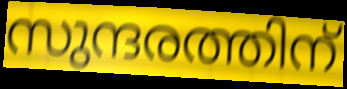
സുന്ദരത്തിന്